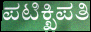
ಪಟಿಕ್ಖಿಪತಿ